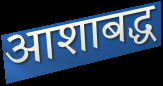
आशाबद्ध